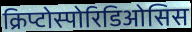
क्रिप्टोस्पोरिडिओसिस